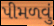
પીમળવું